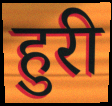
हुरी